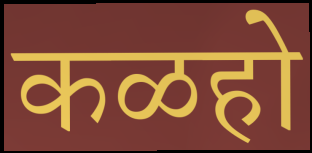
कळहो